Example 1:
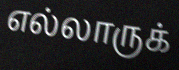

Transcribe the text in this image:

எல்லாருக்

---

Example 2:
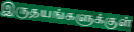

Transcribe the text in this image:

இருதயங்களுக்குள்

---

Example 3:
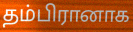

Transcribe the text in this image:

தம்பிரானாக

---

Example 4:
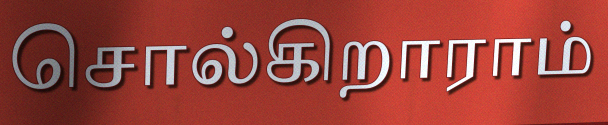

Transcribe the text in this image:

சொல்கிறாராம்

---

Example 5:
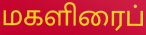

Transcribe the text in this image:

மகளிரைப்